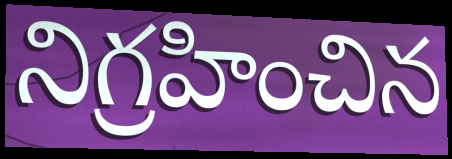
నిగ్రహించిన